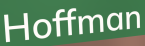
Hoffman